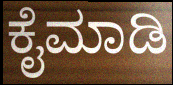
ಕೈಮಾಡಿ